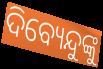
ଦିବ୍ୟେନ୍ଦୁଙ୍କୁ